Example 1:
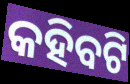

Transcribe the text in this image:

କହିବଟି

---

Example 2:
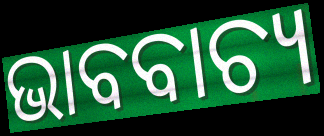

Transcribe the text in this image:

ଭାବବାଚ୍ୟ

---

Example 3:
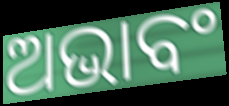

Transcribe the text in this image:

ଅଭାବଂ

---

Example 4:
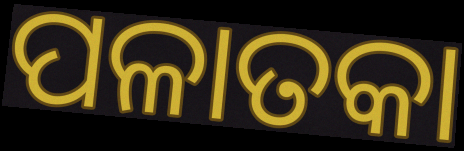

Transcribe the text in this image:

ପଳାତକା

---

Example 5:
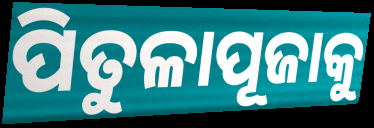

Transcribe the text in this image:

ପିତୁଳାପୂଜାକୁ